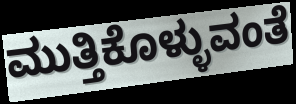
ಮುತ್ತಿಕೊಳ್ಳುವಂತೆ